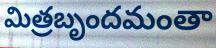
మిత్రబృందమంతా